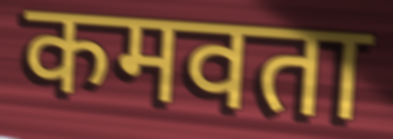
कमवता